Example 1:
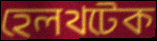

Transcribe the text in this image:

হেলথটেক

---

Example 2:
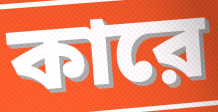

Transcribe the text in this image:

কারে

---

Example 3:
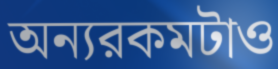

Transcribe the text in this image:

অন্যরকমটাও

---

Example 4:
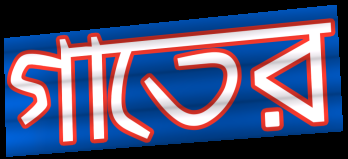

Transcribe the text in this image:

গাতের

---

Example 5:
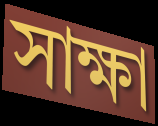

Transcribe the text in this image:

সাক্ষা